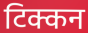
टिक्कन